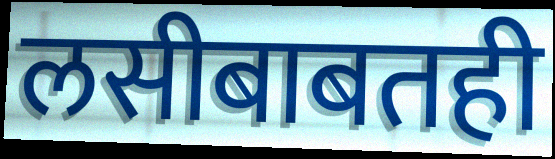
लसीबाबतही